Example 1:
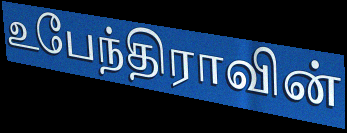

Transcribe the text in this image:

உபேந்திராவின்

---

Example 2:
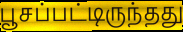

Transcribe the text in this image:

பூசப்பட்டிருந்தது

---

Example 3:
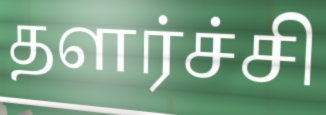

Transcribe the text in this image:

தளர்ச்சி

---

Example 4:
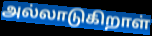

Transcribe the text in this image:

அல்லாடுகிறாள்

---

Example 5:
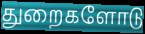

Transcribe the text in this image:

துறைகளோடு